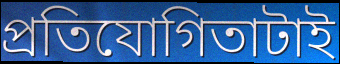
প্রতিযোগিতাটাই